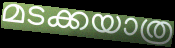
മടക്കയാത്ര